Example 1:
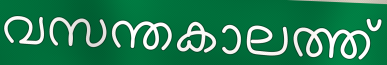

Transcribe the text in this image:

വസന്തകാലത്ത്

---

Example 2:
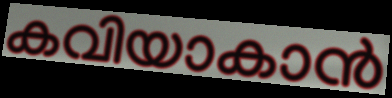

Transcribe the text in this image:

കവിയാകാൻ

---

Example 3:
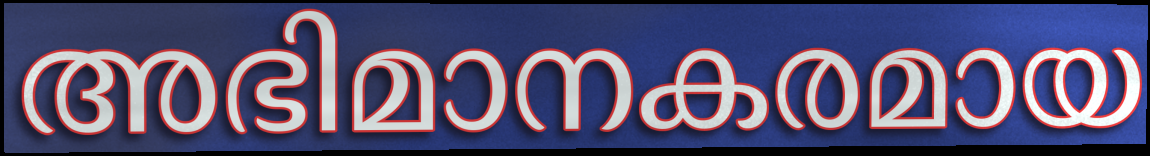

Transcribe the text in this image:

അഭിമാനകരമായ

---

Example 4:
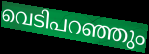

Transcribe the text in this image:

വെടിപറഞ്ഞും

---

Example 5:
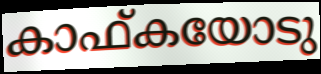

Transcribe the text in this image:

കാഫ്കയോടു